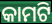
କାମଟି